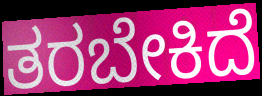
ತರಬೇಕಿದೆ